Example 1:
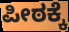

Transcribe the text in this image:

ಪೀಠಕ್ಕೆ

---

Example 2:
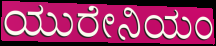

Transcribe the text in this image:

ಯುರೇನಿಯಂ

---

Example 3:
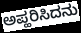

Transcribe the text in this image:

ಅಪ್ಹರಿಸಿದನು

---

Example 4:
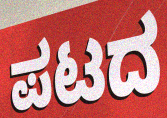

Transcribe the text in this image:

ಪಟದ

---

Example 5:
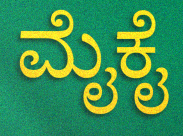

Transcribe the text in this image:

ಮೈಕೈ